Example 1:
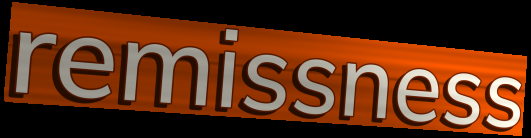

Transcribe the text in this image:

remissness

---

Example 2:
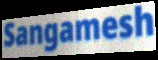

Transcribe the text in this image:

Sangamesh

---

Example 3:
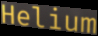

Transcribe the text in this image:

Helium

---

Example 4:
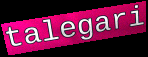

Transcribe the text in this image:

talegari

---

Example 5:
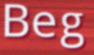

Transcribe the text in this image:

Beg